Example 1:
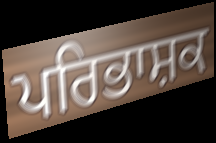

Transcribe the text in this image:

ਪਰਿਭਾਸ਼ਕ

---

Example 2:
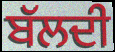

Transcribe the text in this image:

ਬੱਲਦੀ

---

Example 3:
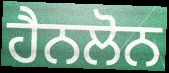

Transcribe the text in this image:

ਹੈਨਲੋਨ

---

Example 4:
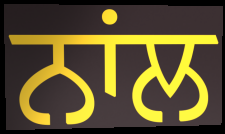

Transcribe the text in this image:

ਨਾਂਲ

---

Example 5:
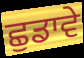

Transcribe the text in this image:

ਛੁਡਾਵੇ